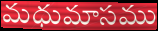
మధుమాసము